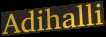
Adihalli